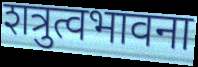
शत्रुत्वभावना